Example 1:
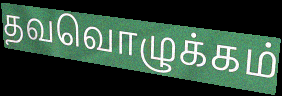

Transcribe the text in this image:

தவவொழுக்கம்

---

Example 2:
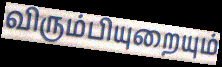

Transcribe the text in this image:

விரும்பியுறையும்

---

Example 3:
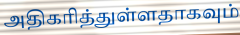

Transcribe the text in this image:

அதிகரித்துள்ளதாகவும்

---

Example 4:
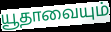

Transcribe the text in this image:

யூதாவையும்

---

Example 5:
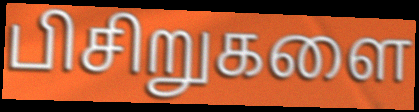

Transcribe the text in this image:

பிசிறுகளை